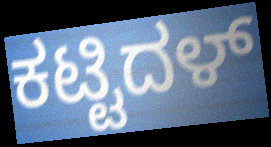
ಕಟ್ಟಿದಳ್